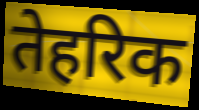
तेहरिक